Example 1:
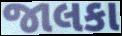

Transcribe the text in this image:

જાલકા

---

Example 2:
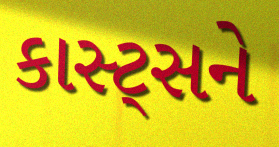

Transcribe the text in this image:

કાસ્ટ્સને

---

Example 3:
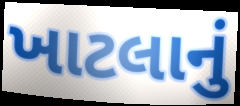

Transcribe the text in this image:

ખાટલાનું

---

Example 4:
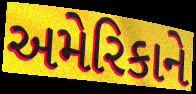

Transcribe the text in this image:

અમેરિકાને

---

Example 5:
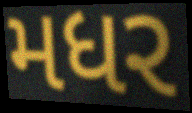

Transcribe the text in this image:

મધર